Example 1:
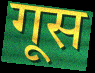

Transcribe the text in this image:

गूस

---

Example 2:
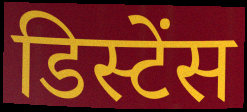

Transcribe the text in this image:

डिस्टेंस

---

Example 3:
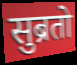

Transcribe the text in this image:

सुब्रतो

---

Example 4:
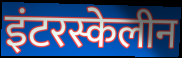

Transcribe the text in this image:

इंटरस्केलीन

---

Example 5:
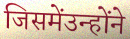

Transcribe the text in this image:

जिसमेंउन्होंने